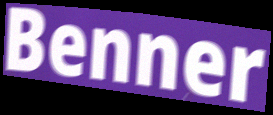
Benner